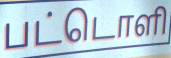
பட்டொளி